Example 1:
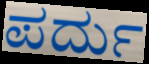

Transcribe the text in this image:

ಪರ್ದು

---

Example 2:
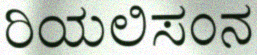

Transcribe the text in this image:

ರಿಯಲಿಸಂನ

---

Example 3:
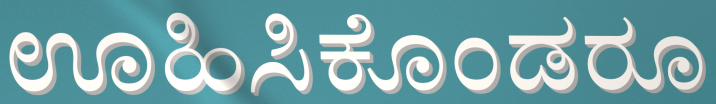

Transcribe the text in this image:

ಊಹಿಸಿಕೊಂಡರೂ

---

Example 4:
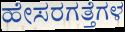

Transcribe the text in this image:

ಹೇಸರಗತ್ತೆಗಳ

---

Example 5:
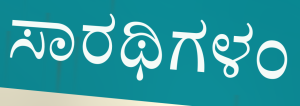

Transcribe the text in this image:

ಸಾರಥಿಗಳಂ